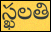
స్ఖలతి